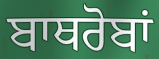
ਬਾਥਰੋਬਾਂ